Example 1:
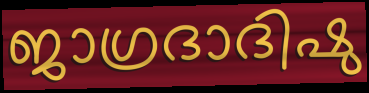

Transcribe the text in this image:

ജാഗ്രദാദിഷു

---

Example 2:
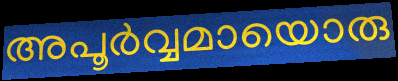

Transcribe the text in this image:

അപൂർവ്വമായൊരു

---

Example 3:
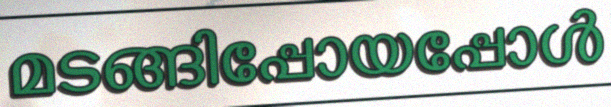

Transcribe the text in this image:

മടങ്ങിപ്പോയപ്പോൾ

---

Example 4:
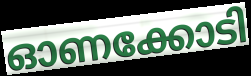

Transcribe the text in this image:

ഓണക്കോടി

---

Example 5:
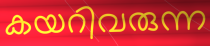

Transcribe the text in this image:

കയറിവരുന്ന